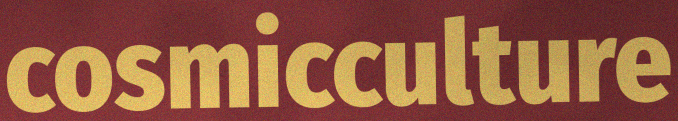
cosmicculture